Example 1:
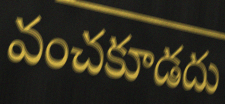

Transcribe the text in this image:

వంచకూడదు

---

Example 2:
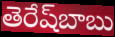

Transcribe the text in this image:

తెరేష్‌బాబు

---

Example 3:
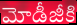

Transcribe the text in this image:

మోడీజీకి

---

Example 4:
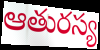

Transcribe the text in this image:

ఆతురస్య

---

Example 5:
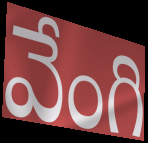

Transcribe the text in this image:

వేంగి